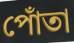
পোঁতা